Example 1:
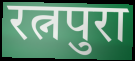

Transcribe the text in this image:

रत्नपुरा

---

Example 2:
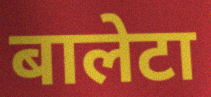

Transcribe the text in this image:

बालेटा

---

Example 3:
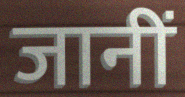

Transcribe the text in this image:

जानीं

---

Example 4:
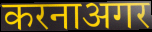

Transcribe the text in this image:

करनाअगर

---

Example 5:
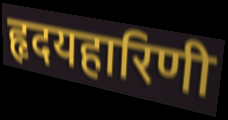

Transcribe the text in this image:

हृदयहारिणी